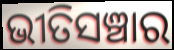
ଭୀତିସଞ୍ଚାର